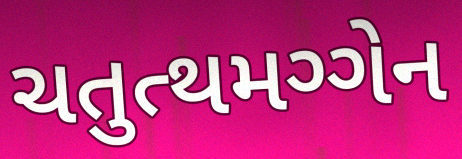
ચતુત્થમગ્ગેન